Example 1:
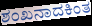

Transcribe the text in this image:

ಶಂಖನಾದಕಿಂತ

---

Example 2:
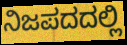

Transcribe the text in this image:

ನಿಜಪದದಲ್ಲಿ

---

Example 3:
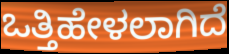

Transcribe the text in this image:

ಒತ್ತಿಹೇಳಲಾಗಿದೆ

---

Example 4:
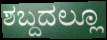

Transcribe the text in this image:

ಶಬ್ದದಲ್ಲೂ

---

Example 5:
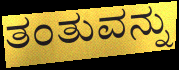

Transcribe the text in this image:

ತಂತುವನ್ನು